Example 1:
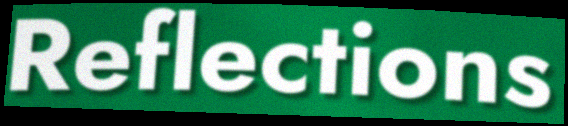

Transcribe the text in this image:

Reflections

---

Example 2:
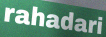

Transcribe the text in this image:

rahadari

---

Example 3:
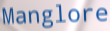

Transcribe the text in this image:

Manglore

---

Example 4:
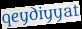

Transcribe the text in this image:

qeydiyyat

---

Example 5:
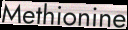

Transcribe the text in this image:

Methionine